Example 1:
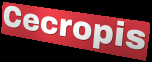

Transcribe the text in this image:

Cecropis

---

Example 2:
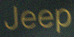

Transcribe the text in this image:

Jeep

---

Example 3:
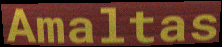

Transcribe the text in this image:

Amaltas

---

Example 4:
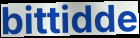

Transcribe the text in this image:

bittidde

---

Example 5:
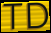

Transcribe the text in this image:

TD